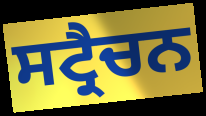
ਸਟ੍ਰੈਚਨ